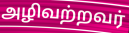
அழிவற்றவர்